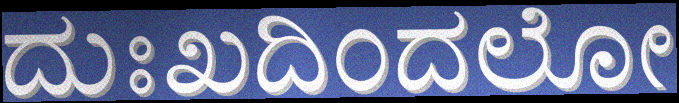
ದುಃಖದಿಂದಲೋ